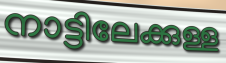
നാട്ടിലേക്കുള്ള